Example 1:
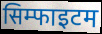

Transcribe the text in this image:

सिम्फाइटम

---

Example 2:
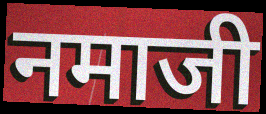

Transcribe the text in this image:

नमाजी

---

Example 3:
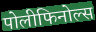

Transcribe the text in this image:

पोलीफिनोल्स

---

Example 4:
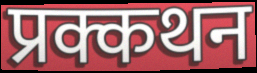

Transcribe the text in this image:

प्रक्कथन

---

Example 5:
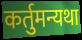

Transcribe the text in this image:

कर्तुमन्यथा